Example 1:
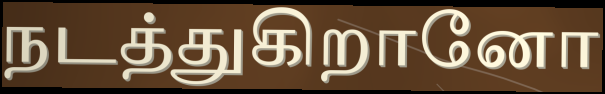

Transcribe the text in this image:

நடத்துகிறானோ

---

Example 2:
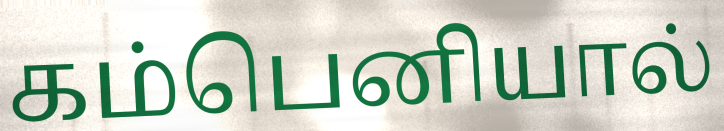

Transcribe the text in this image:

கம்பெனியால்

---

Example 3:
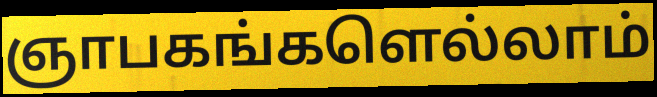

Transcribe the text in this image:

ஞாபகங்களெல்லாம்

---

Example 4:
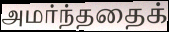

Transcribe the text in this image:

அமர்ந்ததைக்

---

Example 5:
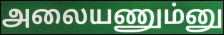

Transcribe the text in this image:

அலையணும்னு